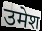
उमेश